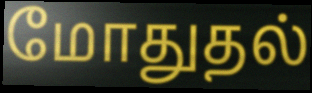
மோதுதல்